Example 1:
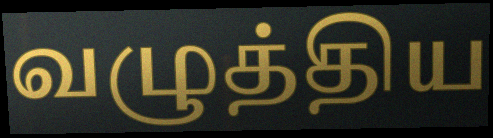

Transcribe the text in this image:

வழுத்திய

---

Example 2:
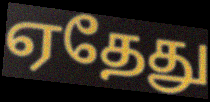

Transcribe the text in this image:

ஏதேது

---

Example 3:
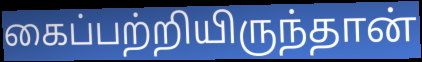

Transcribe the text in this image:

கைப்பற்றியிருந்தான்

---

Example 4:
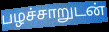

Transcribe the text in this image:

பழச்சாறுடன்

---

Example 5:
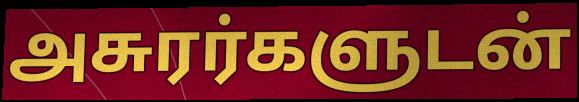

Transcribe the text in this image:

அசுரர்களுடன்